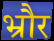
भ्रौर